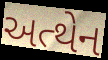
અત્થેન